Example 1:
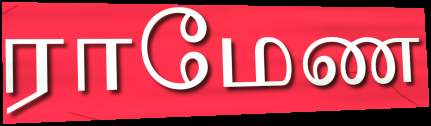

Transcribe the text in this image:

ராமேண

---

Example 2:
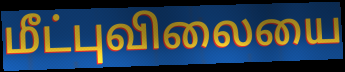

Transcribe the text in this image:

மீட்புவிலையை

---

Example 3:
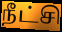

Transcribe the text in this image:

நீட்சி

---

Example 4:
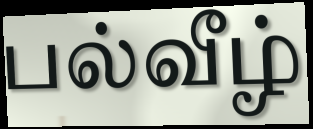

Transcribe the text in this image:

பல்வீழ்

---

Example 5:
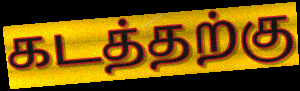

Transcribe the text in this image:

கடத்தற்கு